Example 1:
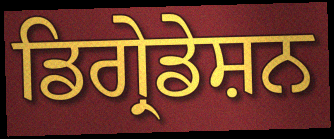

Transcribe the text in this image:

ਡਿਗ੍ਰੇਡੇਸ਼ਨ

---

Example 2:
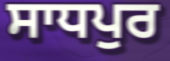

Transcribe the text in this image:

ਸਾਧਪੁਰ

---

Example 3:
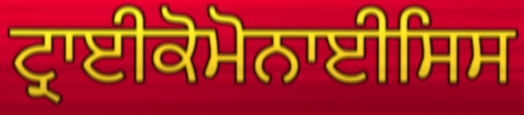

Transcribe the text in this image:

ਟ੍ਰਾਈਕੋਮੋਨਾਈਸਿਸ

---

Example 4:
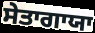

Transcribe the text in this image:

ਸੇਤਾਗਾਯਾ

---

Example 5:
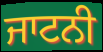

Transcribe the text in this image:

ਜਾਟਨੀ